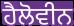
ਹੈਲੋਵੀਨ